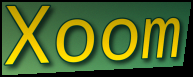
Xoom